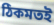
ঠিকমতই